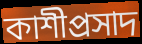
কাশীপ্রসাদ